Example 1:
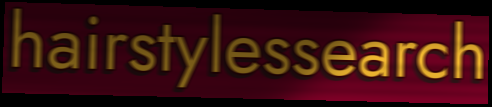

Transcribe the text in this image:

hairstylessearch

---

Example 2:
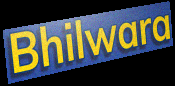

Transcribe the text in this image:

Bhilwara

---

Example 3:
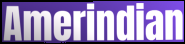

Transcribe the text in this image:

Amerindian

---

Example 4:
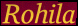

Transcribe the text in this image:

Rohila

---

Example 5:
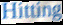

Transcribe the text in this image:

Hitting